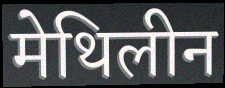
मेथिलीन